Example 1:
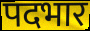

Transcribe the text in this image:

पदभार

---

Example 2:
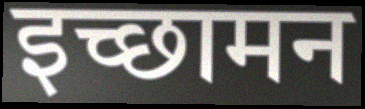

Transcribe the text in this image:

इच्छामन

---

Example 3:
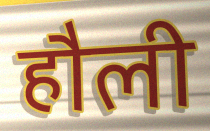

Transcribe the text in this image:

हौली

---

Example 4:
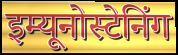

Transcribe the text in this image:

इम्यूनोस्टेनिंग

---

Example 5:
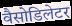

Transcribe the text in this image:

वैसोडिलेटर